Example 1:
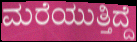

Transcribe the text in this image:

ಮರೆಯುತ್ತಿದ್ದೆ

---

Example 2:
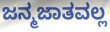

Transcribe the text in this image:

ಜನ್ಮಜಾತವಲ್ಲ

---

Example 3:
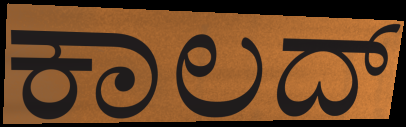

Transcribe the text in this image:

ಕಾಲದ್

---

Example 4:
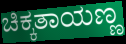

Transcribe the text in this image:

ಚಿಕ್ಕತಾಯಣ್ಣ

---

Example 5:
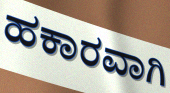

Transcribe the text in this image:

ಹಕಾರವಾಗಿ